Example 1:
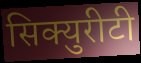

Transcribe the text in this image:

सिक्युरीटी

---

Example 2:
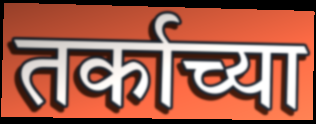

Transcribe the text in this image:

तर्काच्या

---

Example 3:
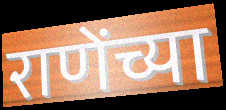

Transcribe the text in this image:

राणेंच्या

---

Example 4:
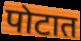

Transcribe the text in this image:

पोटात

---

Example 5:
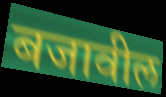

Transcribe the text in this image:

बजावील